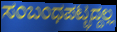
ಸಂಬಂಧಪಟ್ಟದ್ದಲ್ಲ